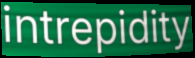
intrepidity